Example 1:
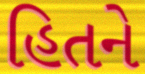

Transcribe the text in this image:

હિતને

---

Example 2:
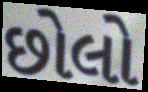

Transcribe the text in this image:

છોલો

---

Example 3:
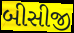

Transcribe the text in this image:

બીસીજી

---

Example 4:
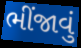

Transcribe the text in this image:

ભીંજાવું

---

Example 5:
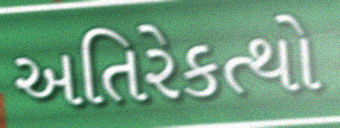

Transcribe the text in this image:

અતિરેકત્થો